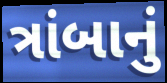
ત્રાંબાનું